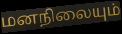
மனநிலையும்